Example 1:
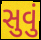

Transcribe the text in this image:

સુવું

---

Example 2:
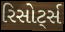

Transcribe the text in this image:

રિસોર્ટ્સ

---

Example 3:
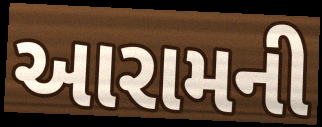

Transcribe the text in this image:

આરામની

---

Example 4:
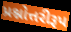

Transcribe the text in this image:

પ્રશ્નોત્તરીરૂપ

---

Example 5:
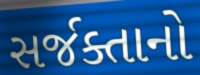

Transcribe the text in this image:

સર્જક્તાનો